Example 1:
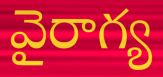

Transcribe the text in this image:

వైరాగ్య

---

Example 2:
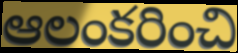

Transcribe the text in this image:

ఆలంకరించి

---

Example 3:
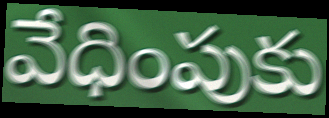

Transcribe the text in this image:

వేధింపుకు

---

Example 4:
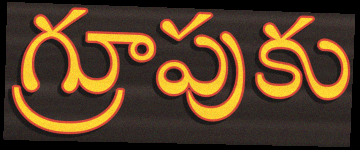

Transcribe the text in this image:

గ్రూపుకు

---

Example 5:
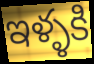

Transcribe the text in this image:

ఇళ్ళకి